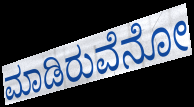
ಮಾಡಿರುವೆನೋ